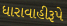
ધારાવાહીરૂપે